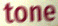
tone